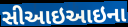
સીઆઇઆઇના